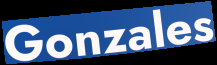
Gonzales